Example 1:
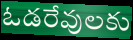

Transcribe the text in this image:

ఓడరేవులకు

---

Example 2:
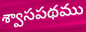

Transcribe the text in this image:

శ్వాసపథము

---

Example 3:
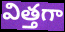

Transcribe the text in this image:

విత్తగా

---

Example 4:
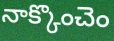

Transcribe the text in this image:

నాక్కొంచెం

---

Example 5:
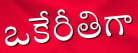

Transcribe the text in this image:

ఒకేరీతిగా